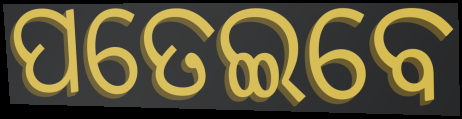
ପତେଇବେ